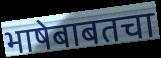
भाषेबाबतचा